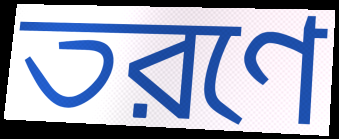
তরণে